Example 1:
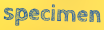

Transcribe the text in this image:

specimen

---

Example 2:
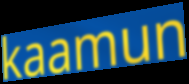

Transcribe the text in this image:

kaamun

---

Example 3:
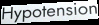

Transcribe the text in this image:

Hypotension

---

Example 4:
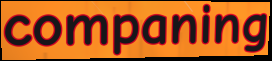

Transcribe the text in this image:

companing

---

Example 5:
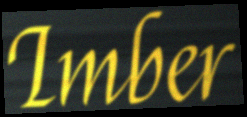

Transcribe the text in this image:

Imber